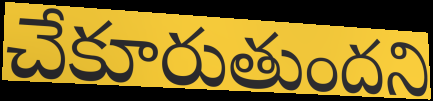
చేకూరుతుందని